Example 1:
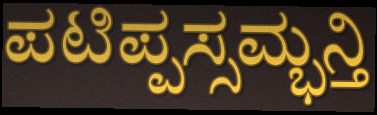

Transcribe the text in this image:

ಪಟಿಪ್ಪಸ್ಸಮ್ಭನ್ತಿ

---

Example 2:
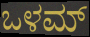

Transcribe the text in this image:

ಒಳಮ್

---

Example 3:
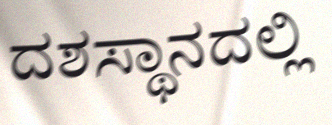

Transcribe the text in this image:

ದಶಸ್ಥಾನದಲ್ಲಿ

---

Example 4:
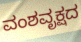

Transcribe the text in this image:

ವಂಶವೃಕ್ಷದ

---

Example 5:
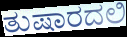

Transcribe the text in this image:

ತುಷಾರದಲಿ